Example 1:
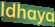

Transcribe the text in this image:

Idhaya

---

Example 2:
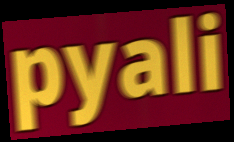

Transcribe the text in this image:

pyali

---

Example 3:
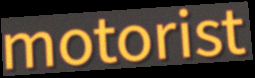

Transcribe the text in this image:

motorist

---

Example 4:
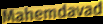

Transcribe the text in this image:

Mahemdavad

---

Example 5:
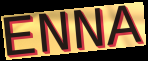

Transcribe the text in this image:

ENNA